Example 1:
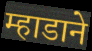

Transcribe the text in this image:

म्हाडाने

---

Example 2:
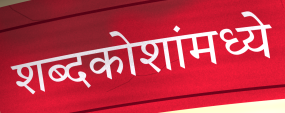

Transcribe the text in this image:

शब्दकोशांमध्ये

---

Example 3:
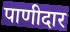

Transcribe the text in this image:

पाणीदार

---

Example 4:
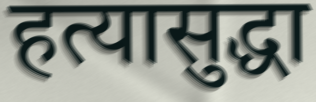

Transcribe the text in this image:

हत्यासुद्धा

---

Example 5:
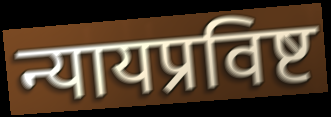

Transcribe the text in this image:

न्यायप्रविष्ट